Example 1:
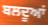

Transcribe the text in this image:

ਬਲਦੂਆਂ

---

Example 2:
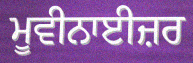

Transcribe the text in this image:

ਮੂਵੀਨਾਈਜ਼ਰ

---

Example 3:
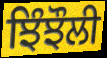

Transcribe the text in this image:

ਝਿੰਝੌਲੀ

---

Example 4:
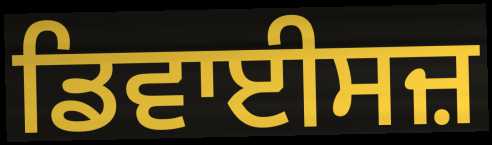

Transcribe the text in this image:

ਡਿਵਾਈਸਜ਼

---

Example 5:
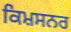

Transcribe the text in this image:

ਕਿਮ਼ਸਨਰ